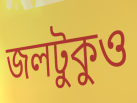
জলটুকুও